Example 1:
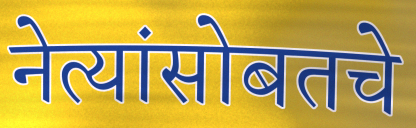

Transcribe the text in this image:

नेत्यांसोबतचे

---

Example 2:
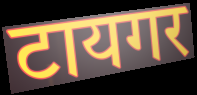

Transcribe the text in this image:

टायगर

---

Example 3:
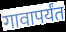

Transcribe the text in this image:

गावापर्यंत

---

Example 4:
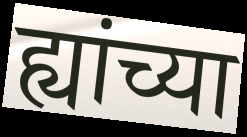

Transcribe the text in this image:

ह्यांच्या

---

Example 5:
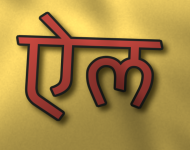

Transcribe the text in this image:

ऐल